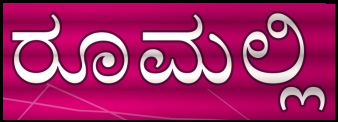
ರೂಮಲ್ಲಿ